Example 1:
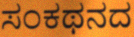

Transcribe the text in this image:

ಸಂಕಥನದ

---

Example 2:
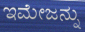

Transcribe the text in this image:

ಇಮೇಜನ್ನು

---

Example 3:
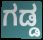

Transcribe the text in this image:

ಗಡ್ಡ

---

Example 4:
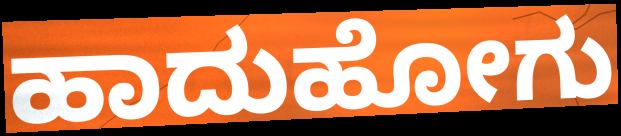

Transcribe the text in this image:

ಹಾದುಹೋಗು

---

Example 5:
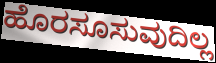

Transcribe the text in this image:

ಹೊರಸೂಸುವುದಿಲ್ಲ